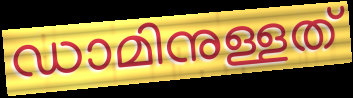
ഡാമിനുള്ളത്